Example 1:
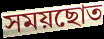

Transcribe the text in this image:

সময়ছোত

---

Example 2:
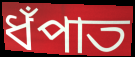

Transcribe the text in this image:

ধঁপাত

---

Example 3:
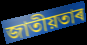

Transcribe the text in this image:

জাতীয়তাৰ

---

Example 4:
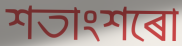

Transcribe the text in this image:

শতাংশৰো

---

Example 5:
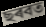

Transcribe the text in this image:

ছৰবত